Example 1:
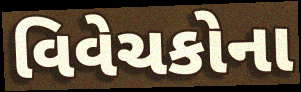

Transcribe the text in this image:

વિવેચકોના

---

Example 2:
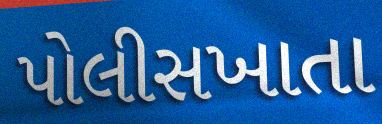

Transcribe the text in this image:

પોલીસખાતા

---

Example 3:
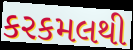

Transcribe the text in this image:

કરકમલથી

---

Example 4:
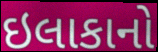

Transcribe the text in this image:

ઇલાકાનો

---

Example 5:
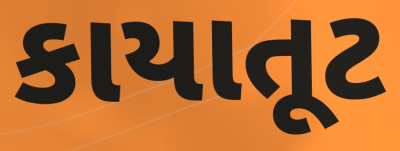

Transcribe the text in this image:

કાયાતૂટ